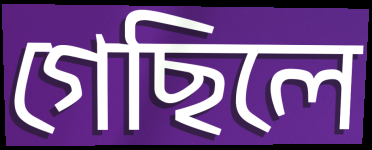
গেছিলে